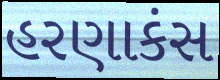
હરણાકંસ